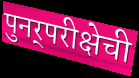
पुनर्परीक्षेची